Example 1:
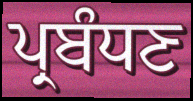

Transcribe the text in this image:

ਪ੍ਰਬੰਧਣ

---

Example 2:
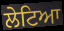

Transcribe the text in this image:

ਲੇਟਿਆ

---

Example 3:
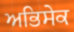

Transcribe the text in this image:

ਅਭਿਸੇਕ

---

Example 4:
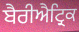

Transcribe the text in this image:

ਬੈਰੀਐਟ੍ਰਿਕ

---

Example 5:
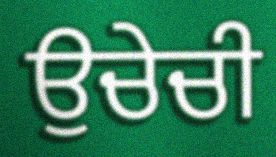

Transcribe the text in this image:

ਉਚੇਚੀ